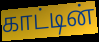
காட்டின்